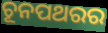
ଚୂନପଥରର